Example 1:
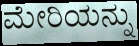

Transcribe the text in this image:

ಮೇರಿಯನ್ನು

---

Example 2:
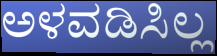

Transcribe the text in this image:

ಅಳವಡಿಸಿಲ್ಲ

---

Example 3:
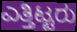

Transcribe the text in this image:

ಎತ್ತಿಟ್ಟರು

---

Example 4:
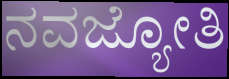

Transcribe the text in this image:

ನವಜ್ಯೋತಿ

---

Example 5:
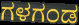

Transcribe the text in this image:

ಗಳಗಂಡ